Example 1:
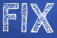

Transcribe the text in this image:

FIX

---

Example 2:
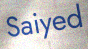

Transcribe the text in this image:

Saiyed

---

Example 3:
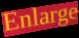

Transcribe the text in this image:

Enlarge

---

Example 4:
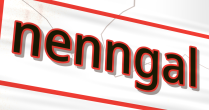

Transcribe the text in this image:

nenngal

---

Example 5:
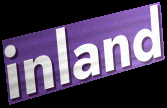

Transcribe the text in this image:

inland